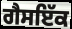
ਗੈਸਇੱਕ